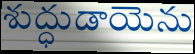
శుద్ధుడాయెను